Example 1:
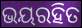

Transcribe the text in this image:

ଭୟରହିତ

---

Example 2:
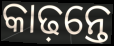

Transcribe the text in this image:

କାଢ଼ନ୍ତେ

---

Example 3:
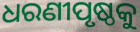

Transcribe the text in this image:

ଧରଣୀପୃଷ୍ଠକୁ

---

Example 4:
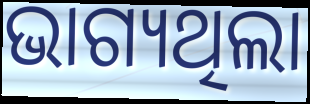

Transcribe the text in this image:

ଭାଗ୍ୟଥିଲା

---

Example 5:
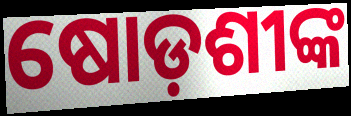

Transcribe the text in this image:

ଷୋଡ଼ଶୀଙ୍କ